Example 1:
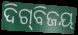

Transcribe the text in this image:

ଦିଗ୍‌ବିଜୟ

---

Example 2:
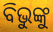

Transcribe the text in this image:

ବିଭୁଙ୍କୁ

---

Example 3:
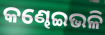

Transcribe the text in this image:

କଣ୍ଢେଇଭଳି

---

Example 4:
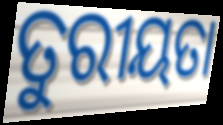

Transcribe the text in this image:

ତୁରୀୟତା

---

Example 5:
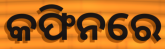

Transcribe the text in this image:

କଫିନରେ